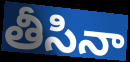
తీసినా